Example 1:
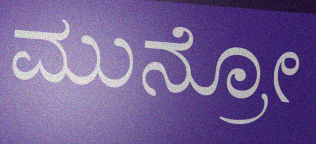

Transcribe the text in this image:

ಮುನ್ರೋ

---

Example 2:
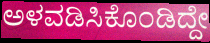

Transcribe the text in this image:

ಅಳವಡಿಸಿಕೊಂಡಿದ್ದೇ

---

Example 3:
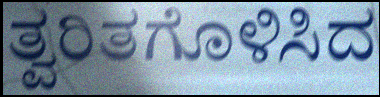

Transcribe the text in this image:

ತ್ವರಿತಗೊಳಿಸಿದ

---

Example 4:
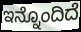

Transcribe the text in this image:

ಇನ್ನೊಂದಿದೆ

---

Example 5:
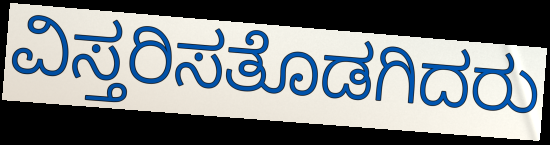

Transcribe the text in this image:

ವಿಸ್ತರಿಸತೊಡಗಿದರು